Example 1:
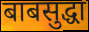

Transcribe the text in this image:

बाबसुद्धा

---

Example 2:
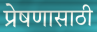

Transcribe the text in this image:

प्रेषणासाठी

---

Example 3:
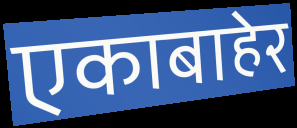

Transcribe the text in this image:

एकाबाहेर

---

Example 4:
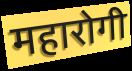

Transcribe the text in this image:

महारोगी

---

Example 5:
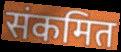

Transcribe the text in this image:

संकमित